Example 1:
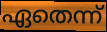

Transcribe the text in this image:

ഏതെന്ന്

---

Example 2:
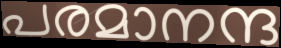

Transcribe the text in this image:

പരമാനന്ദ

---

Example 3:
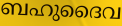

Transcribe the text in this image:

ബഹുദൈവ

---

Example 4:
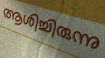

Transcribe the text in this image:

ആശിച്ചിരുന്നു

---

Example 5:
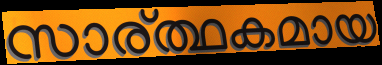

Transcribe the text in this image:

സാര്ത്ഥകമായ